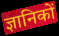
ज्ञानिकों